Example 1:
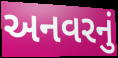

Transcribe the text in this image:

અનવરનું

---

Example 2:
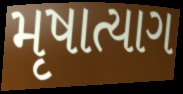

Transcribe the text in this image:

મૃષાત્યાગ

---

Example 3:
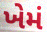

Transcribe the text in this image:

ખેમં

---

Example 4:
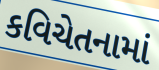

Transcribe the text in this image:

કવિચેતનામાં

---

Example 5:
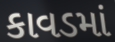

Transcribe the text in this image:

કાવડમાં